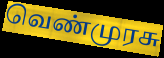
வெண்முரசு